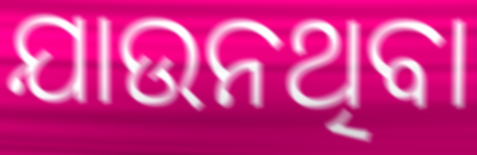
ଯାଉନଥିବା